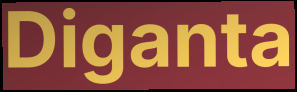
Diganta